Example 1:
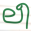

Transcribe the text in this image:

ലീ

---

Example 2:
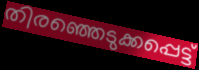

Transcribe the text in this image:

തിരഞ്ഞെടുക്കപ്പെട്ട്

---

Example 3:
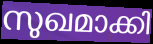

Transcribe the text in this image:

സുഖമാക്കി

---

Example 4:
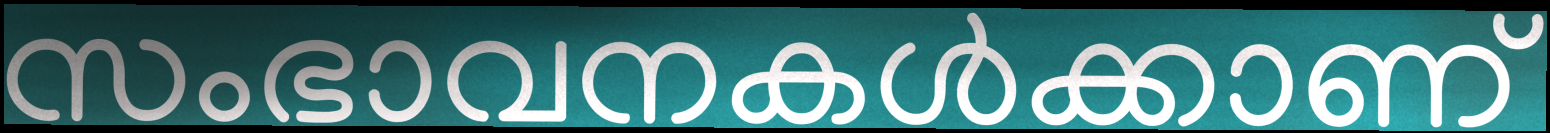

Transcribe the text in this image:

സംഭാവനകൾക്കാണ്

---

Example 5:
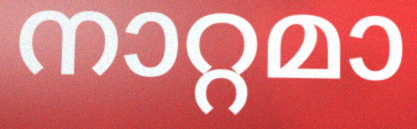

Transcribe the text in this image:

നാറ്റമാ